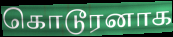
கொடூரனாக